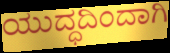
ಯುದ್ಧದಿಂದಾಗಿ